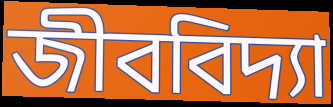
জীববিদ্যা